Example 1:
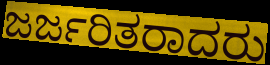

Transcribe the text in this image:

ಜರ್ಜರಿತರಾದರು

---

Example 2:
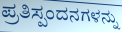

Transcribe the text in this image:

ಪ್ರತಿಸ್ಪಂದನಗಳನ್ನು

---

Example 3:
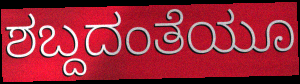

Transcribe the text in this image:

ಶಬ್ದದಂತೆಯೂ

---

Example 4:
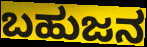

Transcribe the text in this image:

ಬಹುಜನ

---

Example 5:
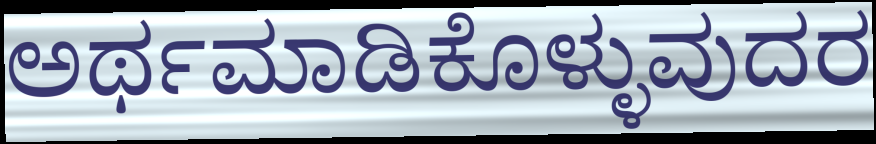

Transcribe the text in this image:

ಅರ್ಥಮಾಡಿಕೊಳ್ಳುವುದರ